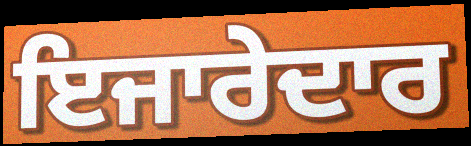
ਇਜਾਰੇਦਾਰ